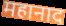
महानाद